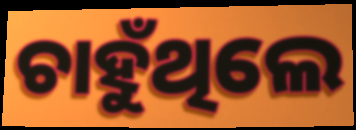
ଚାହୁଁଥିଲେ